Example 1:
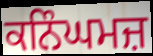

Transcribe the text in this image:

ਕਨਿੰਘਮਜ਼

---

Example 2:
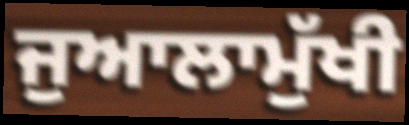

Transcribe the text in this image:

ਜੁਆਲਾਮੁੱਖੀ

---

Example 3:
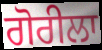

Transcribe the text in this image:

ਗੋਰੀਲਾ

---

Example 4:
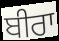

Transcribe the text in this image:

ਬੀਰਾ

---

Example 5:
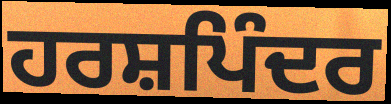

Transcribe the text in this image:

ਹਰਸ਼ਪਿੰਦਰ